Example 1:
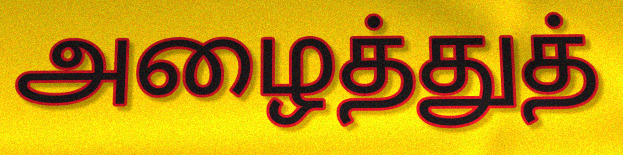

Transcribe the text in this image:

அழைத்துத்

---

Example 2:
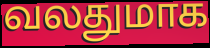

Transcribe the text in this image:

வலதுமாக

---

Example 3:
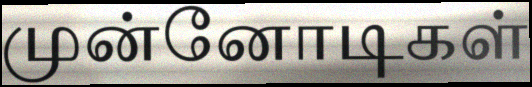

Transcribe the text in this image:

முன்னோடிகள்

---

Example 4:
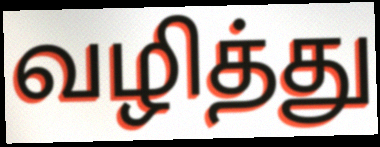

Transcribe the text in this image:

வழித்து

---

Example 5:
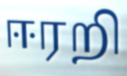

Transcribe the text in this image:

ஈரறி